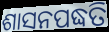
ଶାସନପଦ୍ଧତି